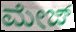
ಮೇಜ್